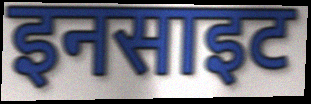
इनसाइट